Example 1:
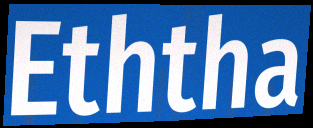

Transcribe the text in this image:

Eththa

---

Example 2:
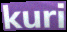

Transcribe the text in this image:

kuri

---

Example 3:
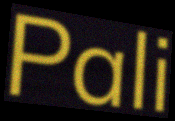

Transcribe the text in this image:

Pali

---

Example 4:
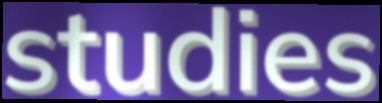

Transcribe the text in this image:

studies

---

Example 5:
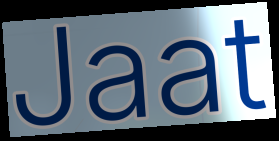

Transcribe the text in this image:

Jaat